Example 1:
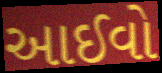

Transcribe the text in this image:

આઈવો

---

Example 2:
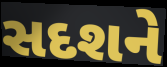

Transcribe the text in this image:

સદશને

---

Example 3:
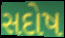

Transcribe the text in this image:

સદોષ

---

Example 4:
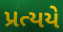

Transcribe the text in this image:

પ્રત્યયે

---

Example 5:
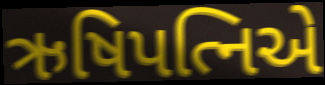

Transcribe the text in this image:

ઋષિપત્નિએ